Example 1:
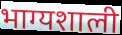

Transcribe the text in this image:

भाग्यशाली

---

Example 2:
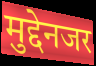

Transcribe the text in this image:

मुद्देनजर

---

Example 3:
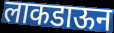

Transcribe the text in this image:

लाकडाऊन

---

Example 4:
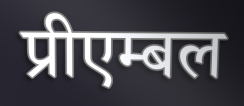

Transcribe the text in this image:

प्रीएम्बल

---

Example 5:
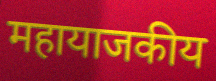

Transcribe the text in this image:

महायाजकीय